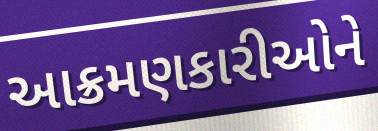
આક્રમણકારીઓને